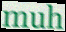
muh